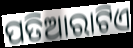
ପତିଆରାଟିଏ